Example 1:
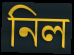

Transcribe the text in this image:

নিল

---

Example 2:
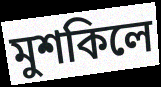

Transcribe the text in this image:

মুশকিলে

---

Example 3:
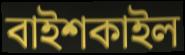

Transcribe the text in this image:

বাইশকাইল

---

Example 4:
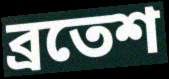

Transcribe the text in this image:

ব্রতেশ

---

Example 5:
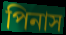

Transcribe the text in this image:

পিনাস